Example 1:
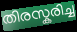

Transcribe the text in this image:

തിരസ്കരിച്ച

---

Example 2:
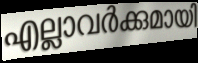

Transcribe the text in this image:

എല്ലാവർക്കുമായി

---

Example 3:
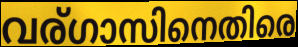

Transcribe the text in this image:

വര്ഗാസിനെതിരെ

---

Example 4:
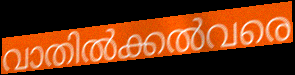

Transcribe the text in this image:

വാതിൽക്കൽവരെ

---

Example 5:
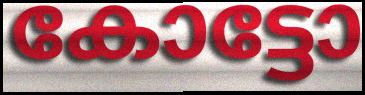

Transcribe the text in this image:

കോട്ടോ